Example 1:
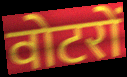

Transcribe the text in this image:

वोटरों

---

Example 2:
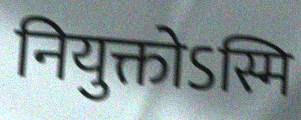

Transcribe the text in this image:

नियुक्तोऽस्मि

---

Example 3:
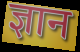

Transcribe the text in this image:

ज्ञान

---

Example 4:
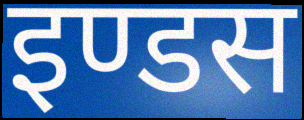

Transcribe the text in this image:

इण्डस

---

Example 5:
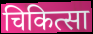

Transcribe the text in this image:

चिकित्सा